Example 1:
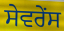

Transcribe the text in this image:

ਸੇਵਰੇਂਸ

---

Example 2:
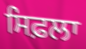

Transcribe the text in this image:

ਸਿਫ਼ਲਾ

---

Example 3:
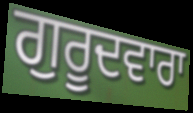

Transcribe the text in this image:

ਗੁਰੂਦਵਾਰਾ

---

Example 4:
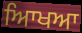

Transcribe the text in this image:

ਆਿਖਆ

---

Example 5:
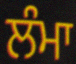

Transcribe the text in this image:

ਲੰਮਾ